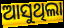
ଆସୁଥିଲା